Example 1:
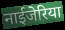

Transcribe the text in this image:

नाईजेरिया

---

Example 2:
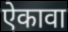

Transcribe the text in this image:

ऐकावा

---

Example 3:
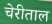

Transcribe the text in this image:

चेरीताल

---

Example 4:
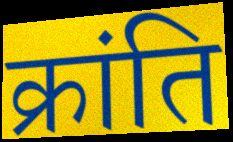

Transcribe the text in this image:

क्रांति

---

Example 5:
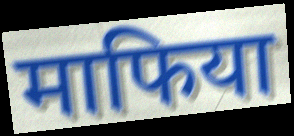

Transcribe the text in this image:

माफिया